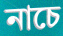
নাচে